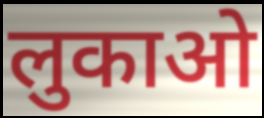
लुकाओ